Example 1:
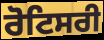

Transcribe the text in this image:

ਰੋਟਿਸਰੀ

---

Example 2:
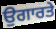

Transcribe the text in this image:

ਉਗਾਰਤੇ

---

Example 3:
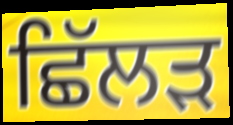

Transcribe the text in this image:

ਛਿੱਲੜ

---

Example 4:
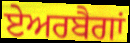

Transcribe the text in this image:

ਏਅਰਬੈਗਾਂ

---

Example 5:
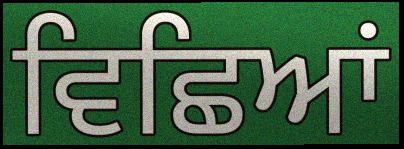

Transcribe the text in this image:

ਵਿਛਿਆਂ